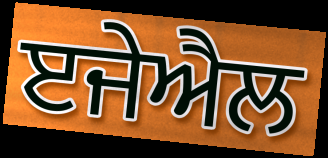
ੲਜੇਐਲ